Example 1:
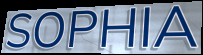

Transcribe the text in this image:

SOPHIA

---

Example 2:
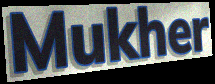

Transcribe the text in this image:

Mukher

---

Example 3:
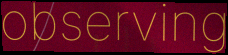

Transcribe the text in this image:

observing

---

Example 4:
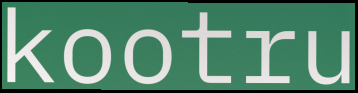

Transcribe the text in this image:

kootru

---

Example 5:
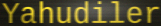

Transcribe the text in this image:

Yahudiler